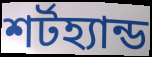
শর্টহ্যান্ড